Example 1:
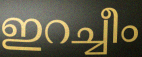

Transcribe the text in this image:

ഇറച്ചീം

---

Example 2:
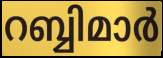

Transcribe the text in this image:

റബ്ബിമാർ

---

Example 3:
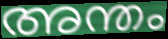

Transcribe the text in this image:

അന്തം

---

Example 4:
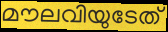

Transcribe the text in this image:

മൗലവിയുടേത്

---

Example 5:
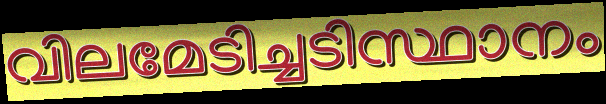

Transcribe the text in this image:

വിലമേടിച്ചടിസ്ഥാനം